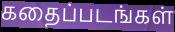
கதைப்படங்கள்